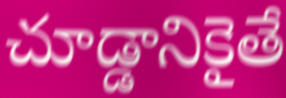
చూడ్డానికైతే